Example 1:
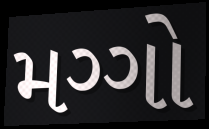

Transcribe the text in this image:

મગ્ગો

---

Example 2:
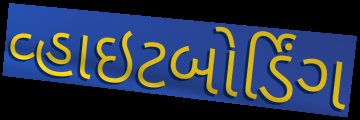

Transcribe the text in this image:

વ્હાઇટબોર્ડિંગ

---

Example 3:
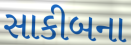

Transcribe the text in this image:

સાકીબના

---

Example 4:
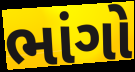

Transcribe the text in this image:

ભાંગો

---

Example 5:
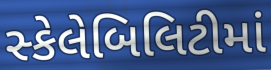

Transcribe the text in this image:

સ્કેલેબિલિટીમાં